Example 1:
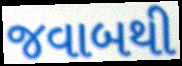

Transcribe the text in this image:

જવાબથી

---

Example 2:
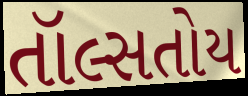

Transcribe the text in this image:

તૉલ્સતોય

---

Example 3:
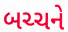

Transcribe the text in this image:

બચ્ચને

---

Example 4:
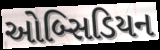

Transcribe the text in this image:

ઓબ્સિડિયન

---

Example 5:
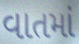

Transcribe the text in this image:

વાતમાં